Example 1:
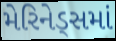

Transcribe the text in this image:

મેરિનેડ્સમાં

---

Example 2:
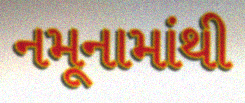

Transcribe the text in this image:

નમૂનામાંથી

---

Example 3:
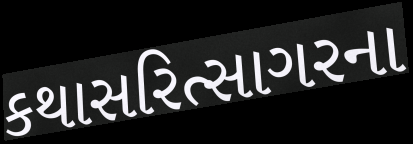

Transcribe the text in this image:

કથાસરિત્સાગરના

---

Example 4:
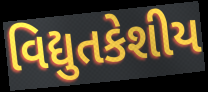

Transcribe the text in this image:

વિદ્યુતકેશીય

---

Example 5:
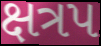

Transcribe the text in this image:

ક્ષત્રપ